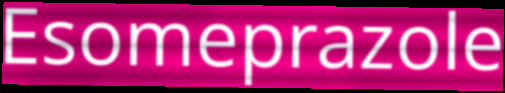
Esomeprazole